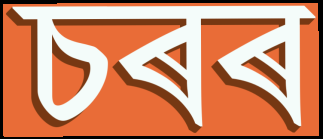
চৰৰ